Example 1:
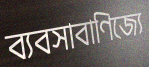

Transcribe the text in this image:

ব্যবসাবাণিজ্যে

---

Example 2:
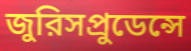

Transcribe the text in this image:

জুরিসপ্রুডেন্সে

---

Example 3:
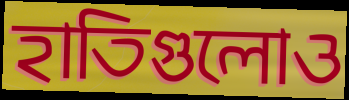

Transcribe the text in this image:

হাতিগুলোও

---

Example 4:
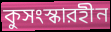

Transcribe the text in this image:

কুসংস্কারহীন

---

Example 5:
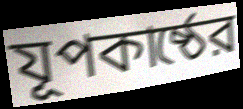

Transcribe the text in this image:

যূপকাষ্ঠের